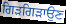
ਗਿੜਗਿੜਾਉਣ